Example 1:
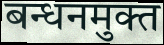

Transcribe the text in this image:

बन्धनमुक्त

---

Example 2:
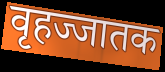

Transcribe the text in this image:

वृहज्जातक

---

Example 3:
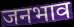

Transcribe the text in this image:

जनभाव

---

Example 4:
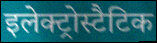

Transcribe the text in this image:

इलेक्ट्रोस्टैटिक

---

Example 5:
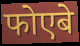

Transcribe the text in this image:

फोएबे